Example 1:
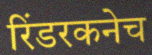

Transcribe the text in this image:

रिंडरकनेच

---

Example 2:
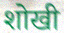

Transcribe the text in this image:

शोखी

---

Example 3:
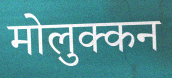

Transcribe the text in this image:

मोलुक्कन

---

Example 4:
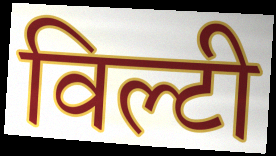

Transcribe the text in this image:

विल्टी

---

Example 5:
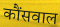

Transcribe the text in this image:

कौंसवाल